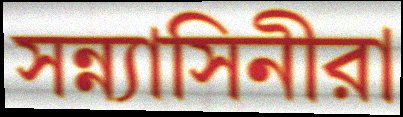
সন্ন্যাসিনীরা